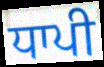
ਧਾਪੀ